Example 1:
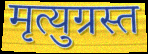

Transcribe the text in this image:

मृत्युग्रस्त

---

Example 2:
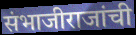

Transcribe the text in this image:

संभाजीराजांची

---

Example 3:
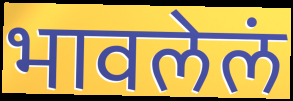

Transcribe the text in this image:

भावलेलं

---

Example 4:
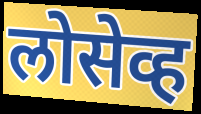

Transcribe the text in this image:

लोसेव्ह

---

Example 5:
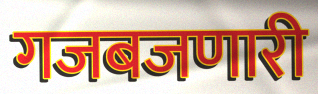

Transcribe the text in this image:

गजबजणारी